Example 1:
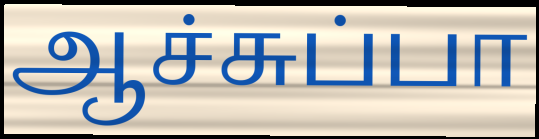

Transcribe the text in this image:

ஆச்சுப்பா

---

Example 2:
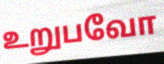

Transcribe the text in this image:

உறுபவோ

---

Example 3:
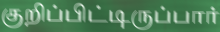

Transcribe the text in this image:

குறிப்பிட்டிருப்பார்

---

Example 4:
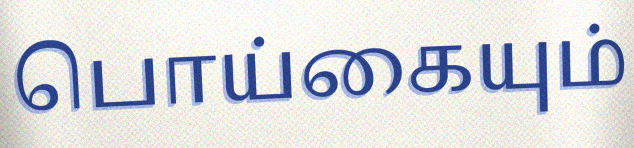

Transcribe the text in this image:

பொய்கையும்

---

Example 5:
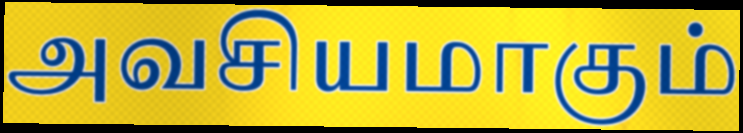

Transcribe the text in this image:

அவசியமாகும்